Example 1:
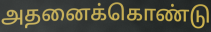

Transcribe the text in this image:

அதனைக்கொண்டு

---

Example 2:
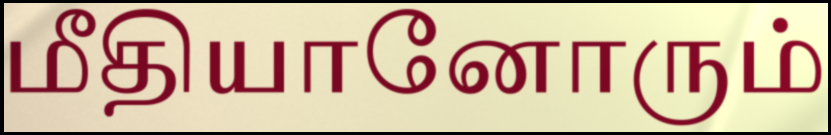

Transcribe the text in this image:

மீதியானோரும்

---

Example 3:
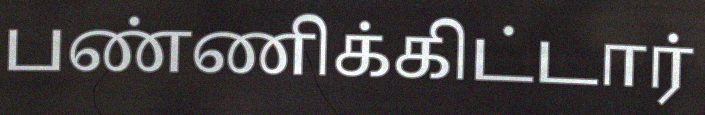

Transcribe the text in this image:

பண்ணிக்கிட்டார்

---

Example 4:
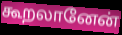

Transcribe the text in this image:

கூறலானேன்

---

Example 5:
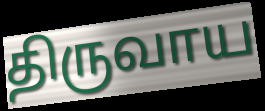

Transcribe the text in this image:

திருவாய